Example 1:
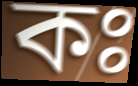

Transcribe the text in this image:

কঃ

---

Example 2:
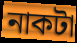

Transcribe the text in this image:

নাকটা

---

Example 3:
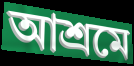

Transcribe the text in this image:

আশ্রমে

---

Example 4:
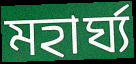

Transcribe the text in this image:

মহার্ঘ্য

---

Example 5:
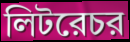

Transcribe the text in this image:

লিটরেচর